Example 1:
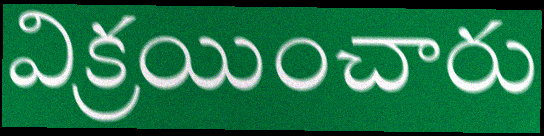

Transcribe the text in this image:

విక్రయించారు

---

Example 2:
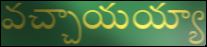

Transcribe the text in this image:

వచ్చాయయ్యా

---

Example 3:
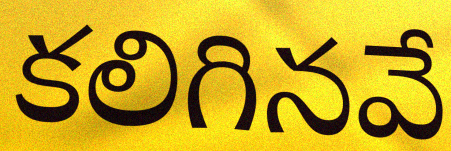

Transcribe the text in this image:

కలిగినవే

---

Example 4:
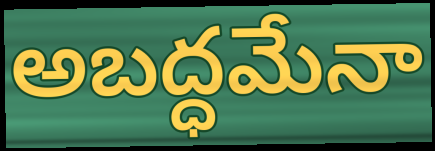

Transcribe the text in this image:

అబద్ధమేనా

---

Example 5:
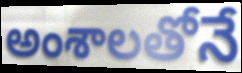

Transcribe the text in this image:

అంశాలతోనే